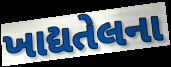
ખાદ્યતેલના